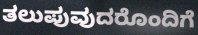
ತಲುಪುವುದರೊಂದಿಗೆ